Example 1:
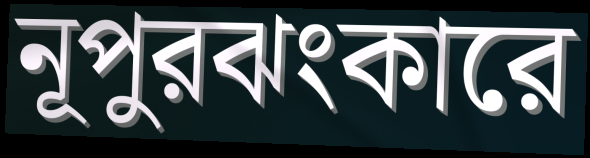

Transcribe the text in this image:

নূপুরঝংকারে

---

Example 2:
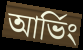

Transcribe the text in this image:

আর্ভিং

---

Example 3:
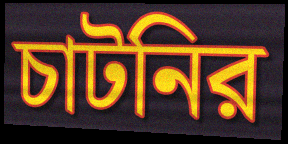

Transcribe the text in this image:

চাটনির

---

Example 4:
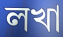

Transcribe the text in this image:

লখা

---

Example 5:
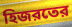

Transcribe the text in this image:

হিজরতের